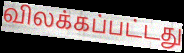
விலக்கப்பட்டது